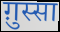
ग़ुस्सा